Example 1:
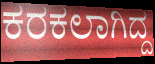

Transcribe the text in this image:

ಕರಕಲಾಗಿದ್ದ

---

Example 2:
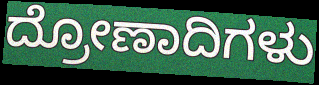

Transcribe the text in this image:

ದ್ರೋಣಾದಿಗಳು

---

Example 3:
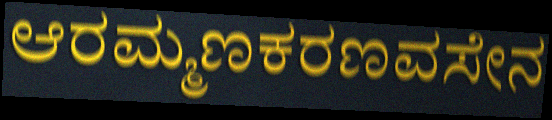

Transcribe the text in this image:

ಆರಮ್ಮಣಕರಣವಸೇನ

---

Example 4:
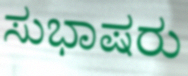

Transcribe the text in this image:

ಸುಭಾಷರು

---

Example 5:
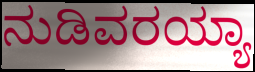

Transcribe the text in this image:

ನುಡಿವರಯ್ಯಾ